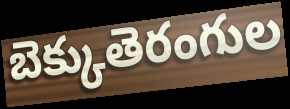
బెక్కుతెరంగుల